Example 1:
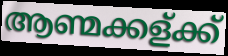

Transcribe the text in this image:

ആണ്മക്കള്ക്ക്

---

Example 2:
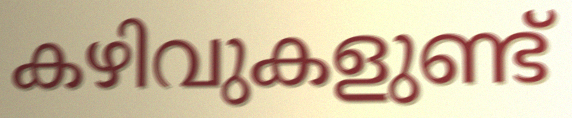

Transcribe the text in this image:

കഴിവുകളുണ്ട്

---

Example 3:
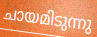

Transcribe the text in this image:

ചായമിടുന്നു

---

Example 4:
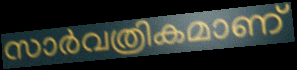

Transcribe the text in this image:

സാർവത്രികമാണ്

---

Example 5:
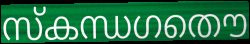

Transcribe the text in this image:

സ്കന്ധഗതൌ